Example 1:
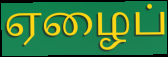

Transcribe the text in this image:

ஏழைப்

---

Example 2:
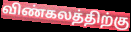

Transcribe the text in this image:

விண்கலத்திற்கு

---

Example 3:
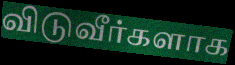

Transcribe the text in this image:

விடுவீர்களாக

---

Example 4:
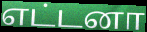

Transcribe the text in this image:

எட்டனா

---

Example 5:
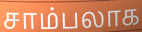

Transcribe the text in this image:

சாம்பலாக